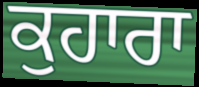
ਕੁਹਾਰਾ